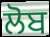
ਲੋਬ